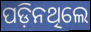
ପଡ଼ିନଥିଲେ